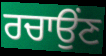
ਰਚਾਉਂਣ